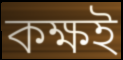
কক্ষই